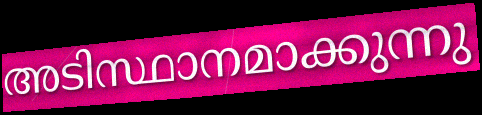
അടിസ്ഥാനമാക്കുന്നു